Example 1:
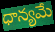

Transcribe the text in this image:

ధాన్యమే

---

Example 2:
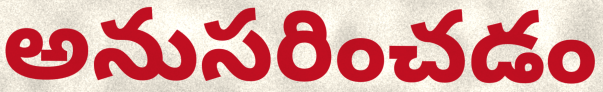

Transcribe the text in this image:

అనుసరించడం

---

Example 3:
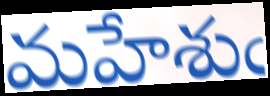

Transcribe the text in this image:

మహేశుఁ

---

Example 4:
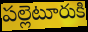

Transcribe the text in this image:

పల్లెటూరుకి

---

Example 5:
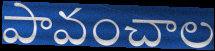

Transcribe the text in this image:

పావంచాల